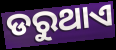
ଡରୁଥାଏ